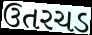
ઉતરચડ